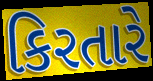
કિરતારે